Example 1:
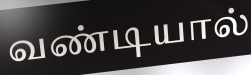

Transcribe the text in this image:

வண்டியால்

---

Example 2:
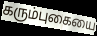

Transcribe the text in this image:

கரும்புகையை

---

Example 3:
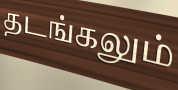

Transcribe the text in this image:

தடங்கலும்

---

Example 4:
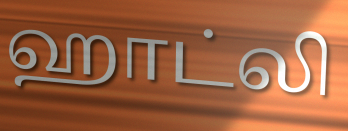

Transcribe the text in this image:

ஹாட்லி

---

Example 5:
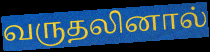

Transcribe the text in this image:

வருதலினால்